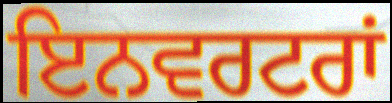
ਇਨਵਰਟਰਾਂ